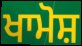
ਖਾਮੋਸ਼